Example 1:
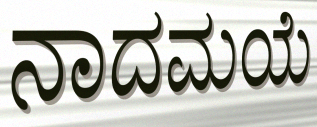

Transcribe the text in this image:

ನಾದಮಯೆ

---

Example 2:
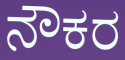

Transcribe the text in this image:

ನೌಕರ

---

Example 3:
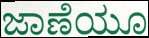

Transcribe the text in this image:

ಜಾಣೆಯೂ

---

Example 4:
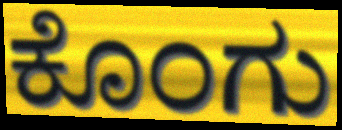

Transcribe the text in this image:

ಕೊಂಗು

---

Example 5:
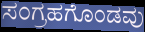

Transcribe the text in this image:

ಸಂಗ್ರಹಗೊಂಡವು